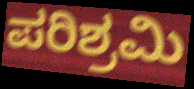
ಪರಿಶ್ರಮಿ